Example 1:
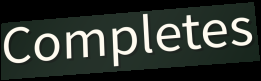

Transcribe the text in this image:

Completes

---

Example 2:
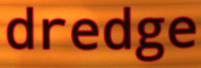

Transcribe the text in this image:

dredge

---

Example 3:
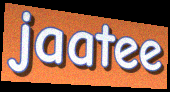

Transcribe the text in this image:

jaatee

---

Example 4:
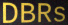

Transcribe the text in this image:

DBRs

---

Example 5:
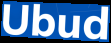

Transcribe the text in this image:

Ubud